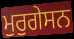
ਮੁਰੁਗੇਸਨ